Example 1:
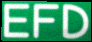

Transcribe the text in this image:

EFD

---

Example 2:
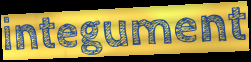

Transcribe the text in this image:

integument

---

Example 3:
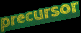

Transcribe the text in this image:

precursor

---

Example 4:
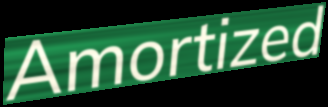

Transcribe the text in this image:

Amortized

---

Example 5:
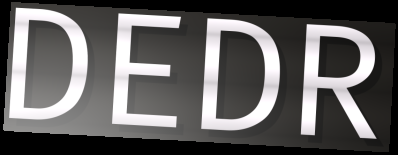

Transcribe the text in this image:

DEDR